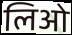
लिओ